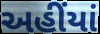
અહીંયાં